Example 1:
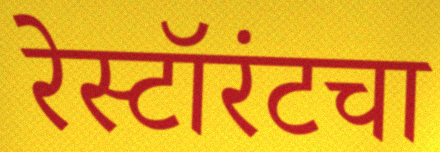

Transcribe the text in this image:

रेस्टॉरंटचा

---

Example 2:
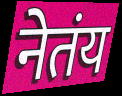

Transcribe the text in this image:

नेतंय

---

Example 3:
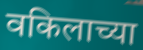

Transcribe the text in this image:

वकिलाच्या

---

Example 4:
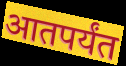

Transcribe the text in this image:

आतपर्यंत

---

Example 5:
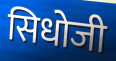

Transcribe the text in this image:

सिधोजी